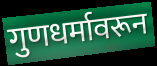
गुणधर्मावरून